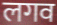
लगव